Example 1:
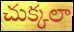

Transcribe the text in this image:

చుక్కలా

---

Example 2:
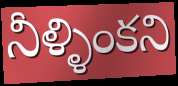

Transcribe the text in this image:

నీళ్ళింకని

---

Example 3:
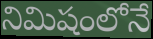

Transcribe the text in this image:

నిమిషంలోనే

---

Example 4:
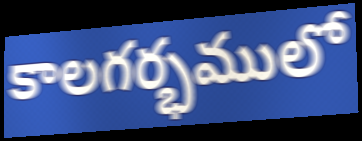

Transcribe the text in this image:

కాలగర్భములో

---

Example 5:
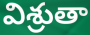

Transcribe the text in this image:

విశ్రుతా